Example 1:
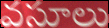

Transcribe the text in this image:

వసూలు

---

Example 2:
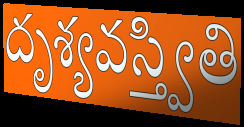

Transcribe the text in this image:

దృశ్యవస్త్వితి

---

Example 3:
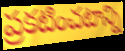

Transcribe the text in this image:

ప్రకటించటాన్ని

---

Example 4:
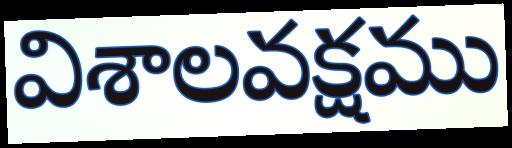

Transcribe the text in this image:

విశాలవక్షము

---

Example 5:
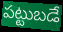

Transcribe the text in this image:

పట్టుబడే